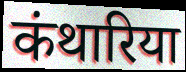
कंथारिया